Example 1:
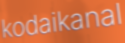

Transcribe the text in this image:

kodaikanal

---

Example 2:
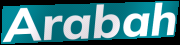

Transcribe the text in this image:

Arabah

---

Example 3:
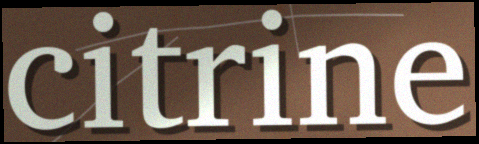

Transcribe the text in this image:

citrine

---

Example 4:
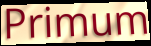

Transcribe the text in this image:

Primum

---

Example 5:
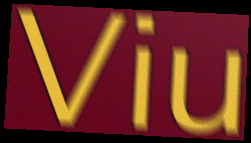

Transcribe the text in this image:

Viu